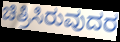
ಚಿತ್ರಿಸಿರುವುದರ